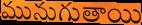
మునుగుతాయి